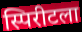
स्पिरीटला